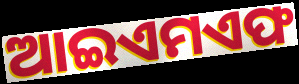
ଆଇଏମଏଫ